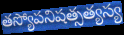
తస్యోపనిషత్సత్యస్య